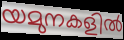
യമുനകളിൽ